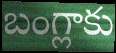
బంగ్లాకు